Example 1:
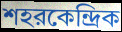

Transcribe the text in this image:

শহরকেন্দ্রিক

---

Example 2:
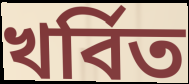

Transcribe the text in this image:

খর্বিত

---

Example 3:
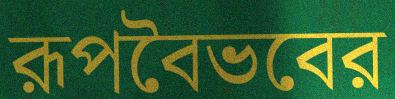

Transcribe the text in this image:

রূপবৈভবের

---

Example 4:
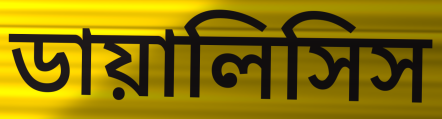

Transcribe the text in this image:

ডায়ালিসিস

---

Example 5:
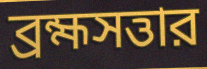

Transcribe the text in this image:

ব্রহ্মসত্তার